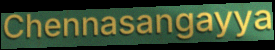
Chennasangayya